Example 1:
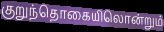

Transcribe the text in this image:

குறுந்தொகையிலொன்றும்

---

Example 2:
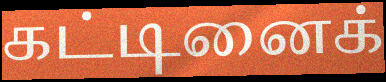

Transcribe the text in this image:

கட்டினைக்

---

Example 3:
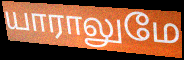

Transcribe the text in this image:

யாராலுமே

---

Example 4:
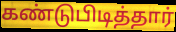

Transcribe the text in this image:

கண்டுபிடித்தார்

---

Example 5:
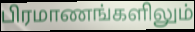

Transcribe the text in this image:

பிரமாணங்களிலும்